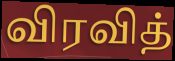
விரவித்